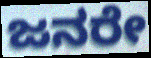
ಜನರೇ